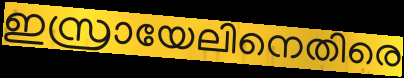
ഇസ്രായേലിനെതിരെ